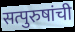
सत्पुरुषांची